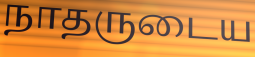
நாதருடைய